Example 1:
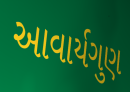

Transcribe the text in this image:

આવાર્યગુણ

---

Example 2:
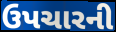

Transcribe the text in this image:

ઉપચારની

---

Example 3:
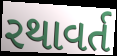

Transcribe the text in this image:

રથાવર્ત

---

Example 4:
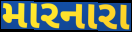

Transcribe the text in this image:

મારનારા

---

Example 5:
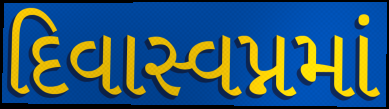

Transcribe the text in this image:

દિવાસ્વપ્નમાં